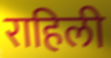
राहिली